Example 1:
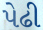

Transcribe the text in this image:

પેઢી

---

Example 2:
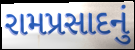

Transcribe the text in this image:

રામપ્રસાદનું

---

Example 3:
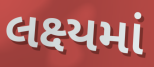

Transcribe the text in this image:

લક્ષ્યમાં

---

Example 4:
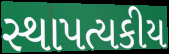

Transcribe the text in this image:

સ્થાપત્યકીય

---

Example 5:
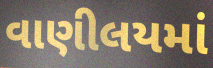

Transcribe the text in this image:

વાણીલયમાં